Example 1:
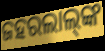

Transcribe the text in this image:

ଜହରଲାଲ୍‌ଙ୍କ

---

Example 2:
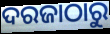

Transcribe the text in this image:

ଦରଜାଠାରୁ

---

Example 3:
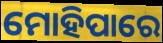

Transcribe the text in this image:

ମୋହିପାରେ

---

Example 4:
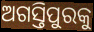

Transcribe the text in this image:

ଅଗସ୍ତିପୁରକୁ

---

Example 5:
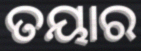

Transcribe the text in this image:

ତୟାର